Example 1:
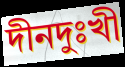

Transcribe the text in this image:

দীনদুঃখী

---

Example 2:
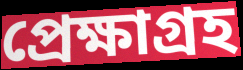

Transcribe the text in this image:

প্রেক্ষাগ্রহ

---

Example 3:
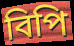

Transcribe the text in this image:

বিপি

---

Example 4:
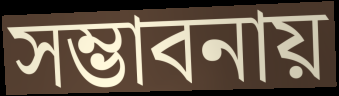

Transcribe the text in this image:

সম্ভাবনায়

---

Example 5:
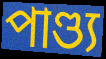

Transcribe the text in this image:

পাণ্ড্য